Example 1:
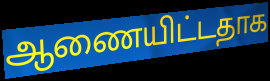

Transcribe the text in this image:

ஆணையிட்டதாக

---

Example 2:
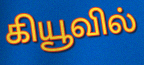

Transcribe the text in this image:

கியூவில்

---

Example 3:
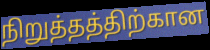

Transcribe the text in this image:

நிறுத்தத்திற்கான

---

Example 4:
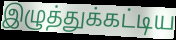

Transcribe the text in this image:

இழுத்துக்கட்டிய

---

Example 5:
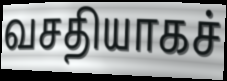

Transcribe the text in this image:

வசதியாகச்